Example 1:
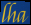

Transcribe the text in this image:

lha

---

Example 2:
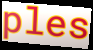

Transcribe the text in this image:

ples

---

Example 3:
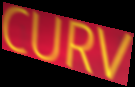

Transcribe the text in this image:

CURV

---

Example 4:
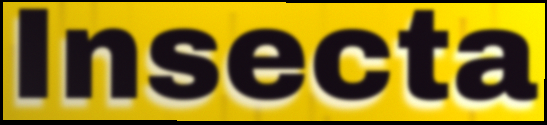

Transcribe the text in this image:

Insecta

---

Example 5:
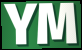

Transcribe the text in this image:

YM